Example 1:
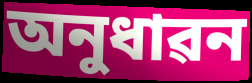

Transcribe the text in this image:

অনুধাৱন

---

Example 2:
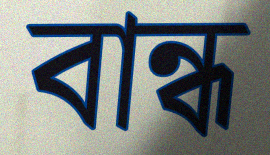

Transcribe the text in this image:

বান্ধ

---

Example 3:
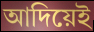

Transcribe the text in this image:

আদিয়েই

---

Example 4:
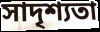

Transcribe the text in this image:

সাদৃশ্যতা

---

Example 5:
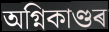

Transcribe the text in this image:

অগ্নিকাণ্ডৰ